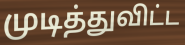
முடித்துவிட்ட